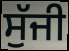
ਸੁੱਜੀ